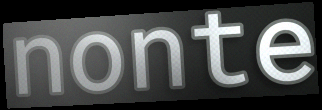
nonte